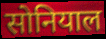
सोनियाल